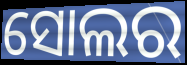
ସୋଲର